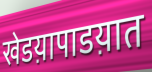
खेडय़ापाडय़ात